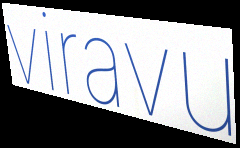
viravu